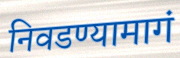
निवडण्यामागं